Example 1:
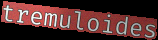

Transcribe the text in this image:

tremuloides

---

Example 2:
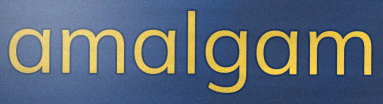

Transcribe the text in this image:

amalgam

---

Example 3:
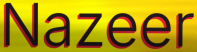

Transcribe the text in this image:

Nazeer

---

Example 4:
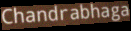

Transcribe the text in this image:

Chandrabhaga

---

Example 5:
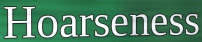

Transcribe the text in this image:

Hoarseness